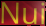
Nui